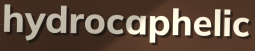
hydrocaphelic